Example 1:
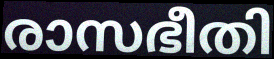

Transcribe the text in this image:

രാസഭീതി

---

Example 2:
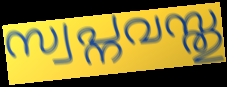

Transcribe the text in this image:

സ്വപ്നവസ്തു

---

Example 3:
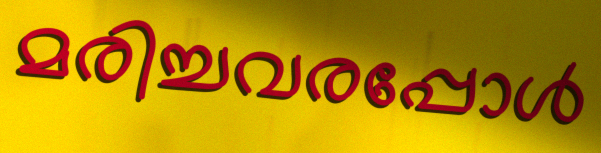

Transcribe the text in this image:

മരിച്ചവരപ്പോൾ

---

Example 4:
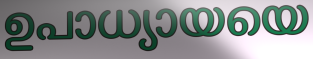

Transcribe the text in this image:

ഉപാധ്യായയെ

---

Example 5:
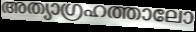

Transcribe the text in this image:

അത്യാഗ്രഹത്താലോ